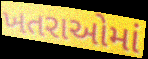
ખતરાઓમાં